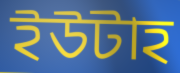
ইউটাহ